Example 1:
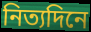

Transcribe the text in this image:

নিত্যদিনে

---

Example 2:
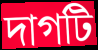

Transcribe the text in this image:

দাগটি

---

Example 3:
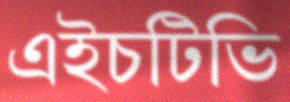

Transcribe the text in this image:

এইচটিভি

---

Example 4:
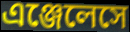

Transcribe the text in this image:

এঞ্জেলেসে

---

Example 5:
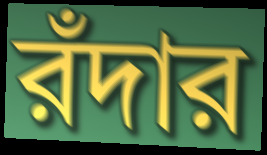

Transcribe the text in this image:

রঁদার